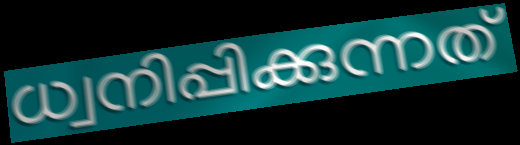
ധ്വനിപ്പിക്കുന്നത്